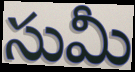
సుమీ